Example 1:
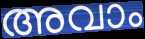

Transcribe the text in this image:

അവാം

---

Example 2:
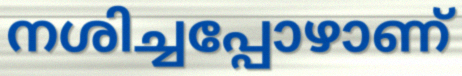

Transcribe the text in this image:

നശിച്ചപ്പോഴാണ്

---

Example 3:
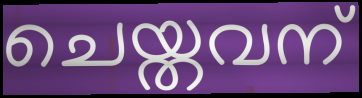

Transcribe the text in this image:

ചെയ്തവന്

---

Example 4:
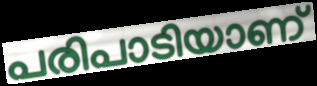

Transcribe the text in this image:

പരിപാടിയാണ്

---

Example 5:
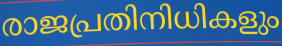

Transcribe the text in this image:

രാജപ്രതിനിധികളും